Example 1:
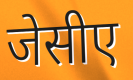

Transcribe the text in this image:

जेसीए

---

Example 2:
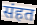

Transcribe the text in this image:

संहत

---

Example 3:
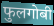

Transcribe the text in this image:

फुलगोबी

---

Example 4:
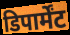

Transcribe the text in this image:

डिपार्मेंट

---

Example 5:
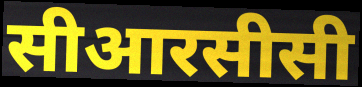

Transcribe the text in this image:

सीआरसीसी